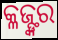
କ୍ଳଜ୍ଙ୍କର